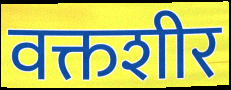
वक्तशीर